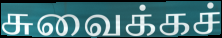
சுவைக்கச்